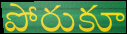
పోరుకూ